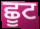
ਛੂਟ